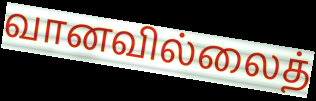
வானவில்லைத்